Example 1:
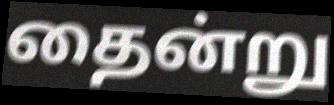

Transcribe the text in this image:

தைன்று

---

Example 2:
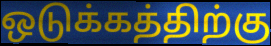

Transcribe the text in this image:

ஒடுக்கத்திற்கு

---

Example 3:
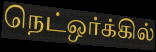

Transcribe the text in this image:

நெட்ஒர்க்கில்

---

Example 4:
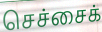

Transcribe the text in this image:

செச்சைக்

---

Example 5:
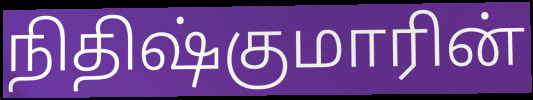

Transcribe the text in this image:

நிதிஷ்குமாரின்